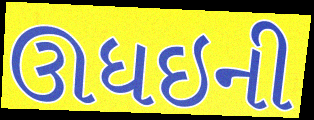
ઊધઇની